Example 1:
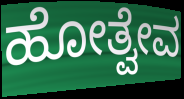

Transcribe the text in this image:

ಹೋತ್ವೇವ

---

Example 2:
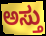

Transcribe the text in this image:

ಅಸ್ತು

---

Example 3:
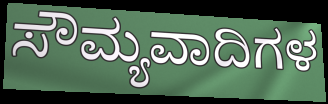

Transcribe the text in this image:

ಸೌಮ್ಯವಾದಿಗಳ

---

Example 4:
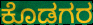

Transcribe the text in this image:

ಕೊಡಗರ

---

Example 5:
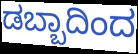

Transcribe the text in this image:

ಡಬ್ಬಾದಿಂದ